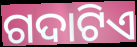
ଗଦାଟିଏ